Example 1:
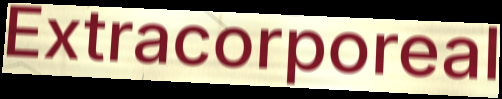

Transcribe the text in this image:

Extracorporeal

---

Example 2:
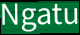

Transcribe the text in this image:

Ngatu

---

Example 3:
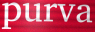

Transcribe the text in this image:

purva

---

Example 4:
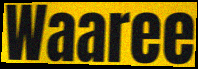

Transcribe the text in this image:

Waaree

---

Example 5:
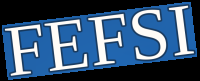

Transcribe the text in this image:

FEFSI